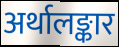
अर्थालङ्कार